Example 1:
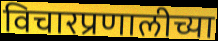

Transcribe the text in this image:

विचारप्रणालीच्या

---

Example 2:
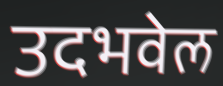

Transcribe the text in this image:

उदभवेल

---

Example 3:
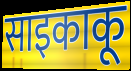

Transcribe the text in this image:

साइकाकू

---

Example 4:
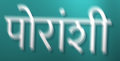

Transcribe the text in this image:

पोरांशी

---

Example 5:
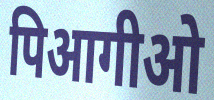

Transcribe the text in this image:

पिआगीओ